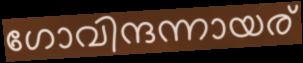
ഗോവിന്ദന്നായര്